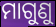
ମାଗୁଣୁ